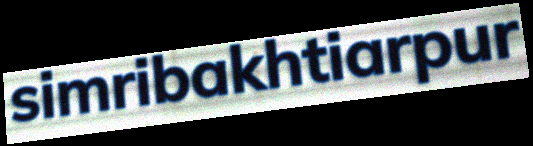
simribakhtiarpur